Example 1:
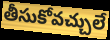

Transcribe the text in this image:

తీసుకోవచ్చులే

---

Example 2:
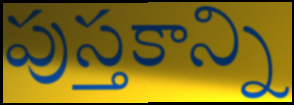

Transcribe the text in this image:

పుస్తకాన్ని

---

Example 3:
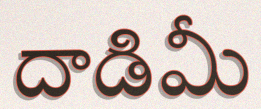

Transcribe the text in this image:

దాడిమీ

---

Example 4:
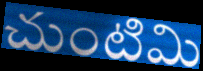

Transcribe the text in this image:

చుంటిమి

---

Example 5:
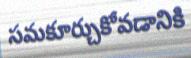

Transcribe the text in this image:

సమకూర్చుకోవడానికి